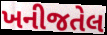
ખનીજતેલ